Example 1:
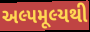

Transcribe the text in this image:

અલ્પમૂલ્યથી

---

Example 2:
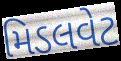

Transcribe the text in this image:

મિડલવેટ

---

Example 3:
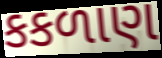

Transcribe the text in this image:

કકળાણ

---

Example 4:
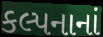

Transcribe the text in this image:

કલ્પનાનાં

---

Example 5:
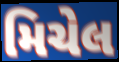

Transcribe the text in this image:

મિચેલ